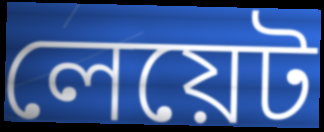
লেয়েট